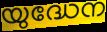
യുദ്ധേന